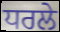
ਧਰਲੇ